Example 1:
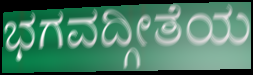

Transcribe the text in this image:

ಭಗವದ್ಗೀತೆಯ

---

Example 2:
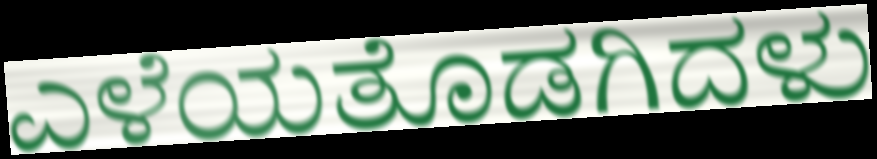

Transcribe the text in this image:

ಎಳೆಯತೊಡಗಿದಳು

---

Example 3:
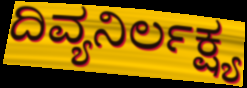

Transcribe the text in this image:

ದಿವ್ಯನಿರ್ಲಕ್ಷ್ಯ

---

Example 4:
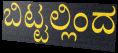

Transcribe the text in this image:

ಬಿಟ್ಟಲ್ಲಿಂದ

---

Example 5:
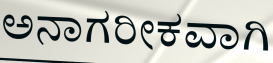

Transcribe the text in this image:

ಅನಾಗರೀಕವಾಗಿ